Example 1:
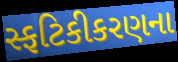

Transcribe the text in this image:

સ્ફટિકીકરણના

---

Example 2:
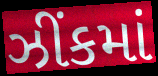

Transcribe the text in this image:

ઝીંકમાં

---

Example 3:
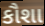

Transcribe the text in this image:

કૌશા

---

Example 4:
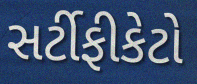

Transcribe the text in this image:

સર્ટીફીકેટો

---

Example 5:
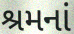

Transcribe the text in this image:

શ્રમનાં